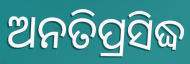
ଅନତିପ୍ରସିଦ୍ଧ